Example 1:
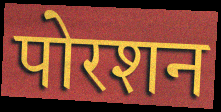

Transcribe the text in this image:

पोरशन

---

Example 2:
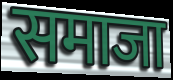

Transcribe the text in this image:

समाजा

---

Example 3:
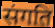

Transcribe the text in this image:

संगति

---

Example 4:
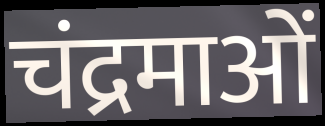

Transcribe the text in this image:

चंद्रमाओं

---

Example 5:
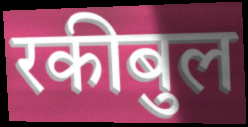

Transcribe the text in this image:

रकीबुल